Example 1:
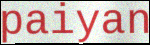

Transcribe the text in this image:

paiyan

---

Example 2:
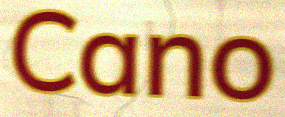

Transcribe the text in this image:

Cano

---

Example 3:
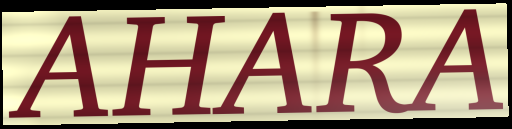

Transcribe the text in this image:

AHARA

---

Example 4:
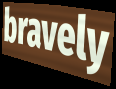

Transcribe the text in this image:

bravely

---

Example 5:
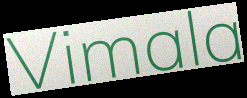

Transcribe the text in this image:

Vimala